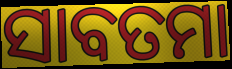
ସାବତମା